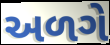
અળગે